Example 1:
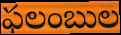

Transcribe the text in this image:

ఫలంబుల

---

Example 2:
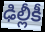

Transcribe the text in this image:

ఢిల్లీకీ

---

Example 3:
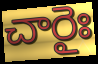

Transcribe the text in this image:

చారైః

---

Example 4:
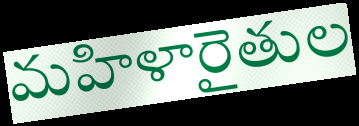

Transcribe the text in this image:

మహిళారైతుల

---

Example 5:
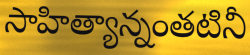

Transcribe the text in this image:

సాహిత్యాన్నంతటినీ